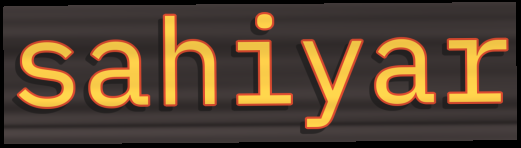
sahiyar